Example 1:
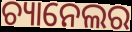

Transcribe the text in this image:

ଚ୍ୟାନେଲର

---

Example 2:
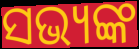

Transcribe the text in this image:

ସଭ୍ୟଙ୍କ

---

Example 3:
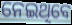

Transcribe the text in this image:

ନେଇଥିବେ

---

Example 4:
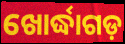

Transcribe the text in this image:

ଖୋର୍ଦ୍ଧାଗଡ଼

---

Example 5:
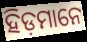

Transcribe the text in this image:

ହିଡ଼ମାନେ